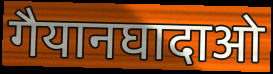
गैयानघादाओ